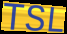
TSL